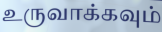
உருவாக்கவும்